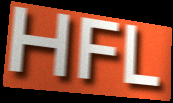
HFL